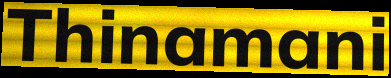
Thinamani